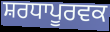
ਸ਼ਰਧਾਪੂਰਵਕ